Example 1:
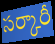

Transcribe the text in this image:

సర్కారీ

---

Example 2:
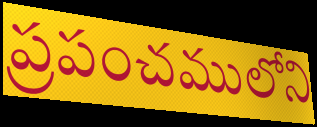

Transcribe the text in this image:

ప్రపంచములోని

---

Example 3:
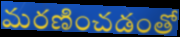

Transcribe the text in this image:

మరణించడంతో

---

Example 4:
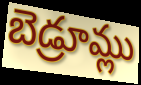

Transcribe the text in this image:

బెడ్రూమ్లు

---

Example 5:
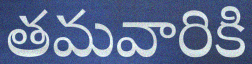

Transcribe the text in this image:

తమవారికి